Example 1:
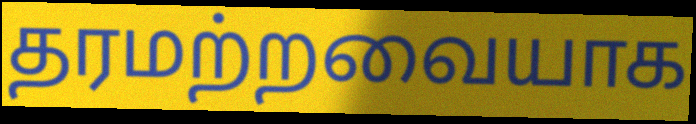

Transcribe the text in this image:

தரமற்றவையாக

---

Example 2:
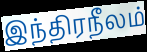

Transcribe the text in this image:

இந்திரநீலம்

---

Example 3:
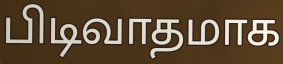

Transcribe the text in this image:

பிடிவாதமாக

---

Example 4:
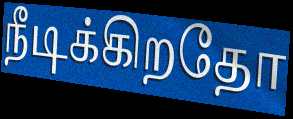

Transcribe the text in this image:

நீடிக்கிறதோ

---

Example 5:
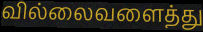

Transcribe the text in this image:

வில்லைவளைத்து